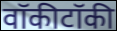
वॉकीटॉकी